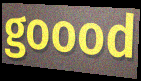
goood